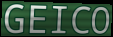
GEICO